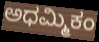
ಅಧಮ್ಮಿಕಂ